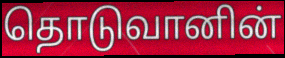
தொடுவானின்